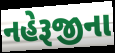
નહેરૂજીના